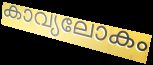
കാവ്യലോകം